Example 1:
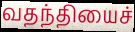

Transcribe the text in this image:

வதந்தியைச்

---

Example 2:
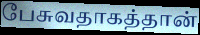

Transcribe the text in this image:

பேசுவதாகத்தான்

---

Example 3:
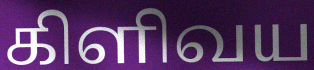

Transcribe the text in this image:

கிளிவய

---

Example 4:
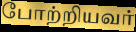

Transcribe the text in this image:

போற்றியவர்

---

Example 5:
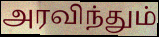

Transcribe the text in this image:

அரவிந்தும்